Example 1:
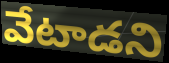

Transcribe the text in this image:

వేటాడని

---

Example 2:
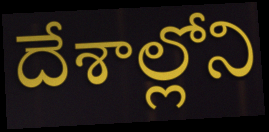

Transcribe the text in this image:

దేశాల్లోని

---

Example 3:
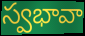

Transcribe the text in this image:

స్వభావా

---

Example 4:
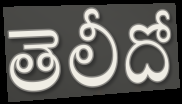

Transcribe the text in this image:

తెలీదో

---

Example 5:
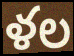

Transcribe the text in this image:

ళల